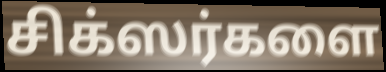
சிக்ஸர்களை